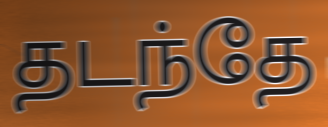
தடந்தே